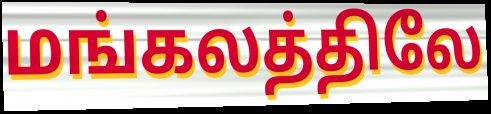
மங்கலத்திலே